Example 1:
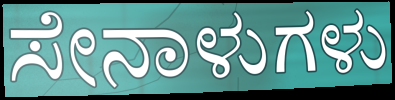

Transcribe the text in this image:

ಸೇನಾಳುಗಳು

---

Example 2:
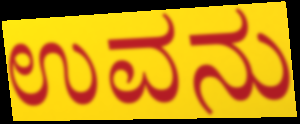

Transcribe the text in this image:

ಉವನು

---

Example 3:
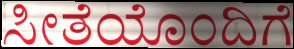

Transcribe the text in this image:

ಸೀತೆಯೊಂದಿಗೆ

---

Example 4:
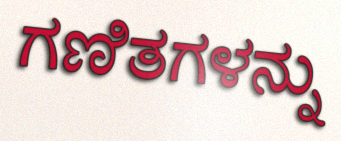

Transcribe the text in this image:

ಗಣಿತಗಳನ್ನು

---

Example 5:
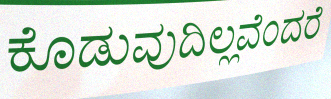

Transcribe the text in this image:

ಕೊಡುವುದಿಲ್ಲವೆಂದರೆ